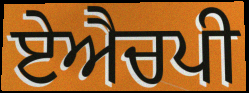
ਏਐਚਪੀ